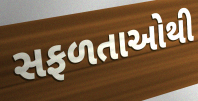
સફળતાઓથી